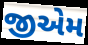
જીએમ